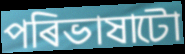
পৰিভাষাটো